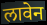
लावेन